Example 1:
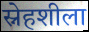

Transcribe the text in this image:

स्नेहशीला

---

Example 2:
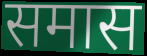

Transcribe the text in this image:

समास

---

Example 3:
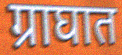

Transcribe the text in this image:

ग्राघात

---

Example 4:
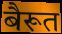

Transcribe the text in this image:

बैरूत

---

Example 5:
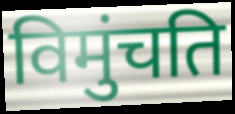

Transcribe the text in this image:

विमुंचति